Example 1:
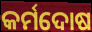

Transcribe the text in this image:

କର୍ମଦୋଷ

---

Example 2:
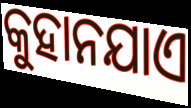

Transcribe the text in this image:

କୁହାନଯାଏ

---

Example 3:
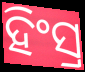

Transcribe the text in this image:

ହିଂସ୍ର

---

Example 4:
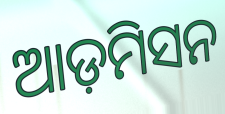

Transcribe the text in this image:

ଆଡ଼ମିସନ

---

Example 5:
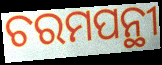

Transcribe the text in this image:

ଚରମପନ୍ଥୀ